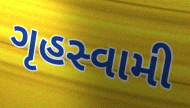
ગૃહસ્વામી